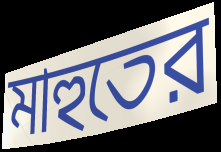
মাহুতের